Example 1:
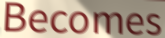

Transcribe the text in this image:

Becomes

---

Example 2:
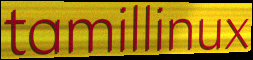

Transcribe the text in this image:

tamillinux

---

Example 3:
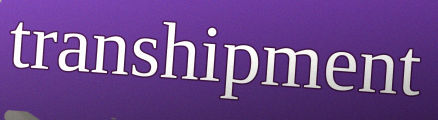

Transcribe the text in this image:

transhipment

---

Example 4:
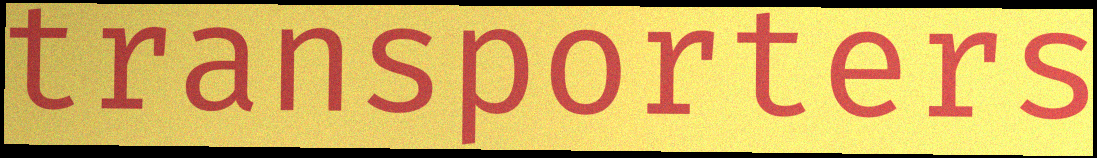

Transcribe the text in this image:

transporters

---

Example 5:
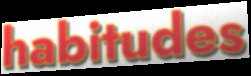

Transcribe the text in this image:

habitudes